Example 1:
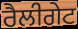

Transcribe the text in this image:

ਰੈਲੀਗੇਟ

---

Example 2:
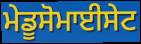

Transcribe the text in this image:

ਮੇਡੂਸੋਮਾਈਸੇਟ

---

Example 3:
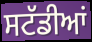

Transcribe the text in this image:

ਸਟੱਡੀਆਂ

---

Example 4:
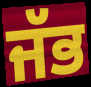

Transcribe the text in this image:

ਜੱਭ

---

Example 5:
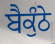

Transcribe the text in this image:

ਬੈਕੁੰਠੇ